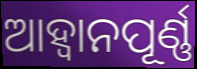
ଆହ୍ବାନପୂର୍ଣ୍ଣ